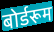
बोर्डरूम